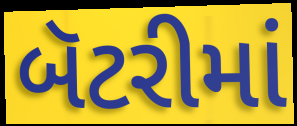
બૅટરીમાં